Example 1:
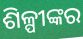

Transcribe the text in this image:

ଶିଳ୍ପୀଙ୍କର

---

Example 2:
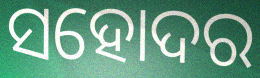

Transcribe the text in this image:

ସହୋଦର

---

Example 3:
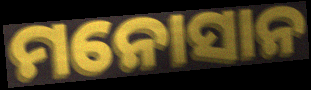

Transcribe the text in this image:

ମନୋସାନ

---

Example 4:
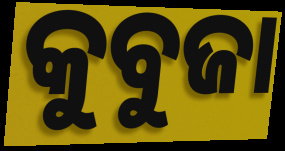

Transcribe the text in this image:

କୁବୁଜା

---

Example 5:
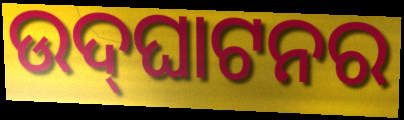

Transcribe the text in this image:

ଉଦ୍‌ଘାଟନର